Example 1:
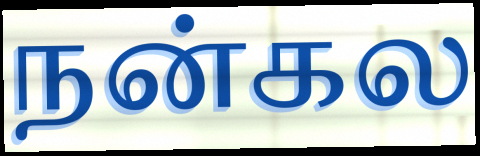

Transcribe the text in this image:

நன்கல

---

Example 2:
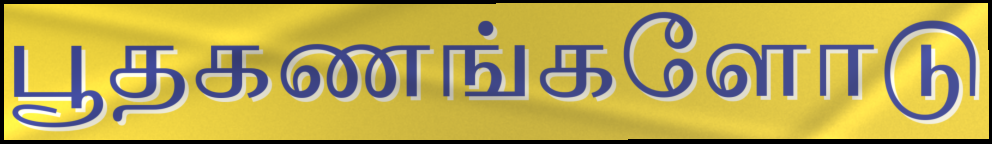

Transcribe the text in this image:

பூதகணங்களோடு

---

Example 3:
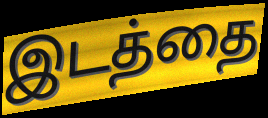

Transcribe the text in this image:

இடத்தை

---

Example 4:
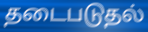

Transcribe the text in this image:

தடைபடுதல்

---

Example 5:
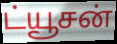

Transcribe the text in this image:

ட்யூசன்